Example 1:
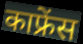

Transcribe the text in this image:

काफ्रेंस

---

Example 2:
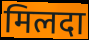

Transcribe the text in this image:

मिलदा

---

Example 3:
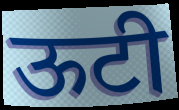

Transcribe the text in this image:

ऊटी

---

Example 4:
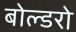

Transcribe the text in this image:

बोल्डरो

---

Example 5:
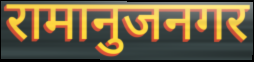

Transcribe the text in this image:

रामानुजनगर